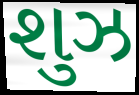
શુઝ